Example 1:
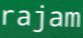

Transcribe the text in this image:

rajam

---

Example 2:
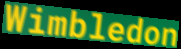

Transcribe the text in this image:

Wimbledon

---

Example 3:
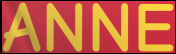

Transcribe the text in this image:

ANNE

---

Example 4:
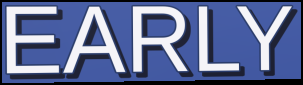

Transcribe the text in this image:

EARLY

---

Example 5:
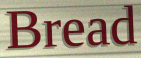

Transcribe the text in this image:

Bread